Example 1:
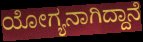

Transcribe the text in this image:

ಯೋಗ್ಯನಾಗಿದ್ದಾನೆ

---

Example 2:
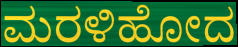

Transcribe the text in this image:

ಮರಳಿಹೋದ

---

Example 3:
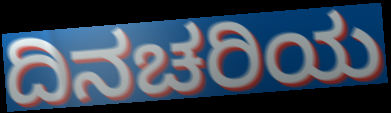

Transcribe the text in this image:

ದಿನಚರಿಯ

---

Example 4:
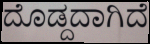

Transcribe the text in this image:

ದೊಡ್ದದಾಗಿದೆ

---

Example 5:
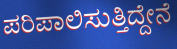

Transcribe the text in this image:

ಪರಿಪಾಲಿಸುತ್ತಿದ್ದೇನೆ